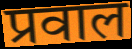
प्रवाल